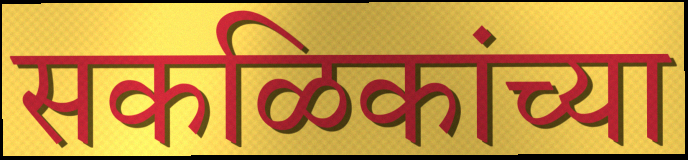
सकळिकांच्या